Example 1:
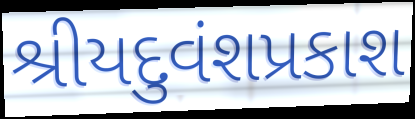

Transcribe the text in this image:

શ્રીયદુવંશપ્રકાશ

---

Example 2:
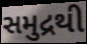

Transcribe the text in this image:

સમુદ્રથી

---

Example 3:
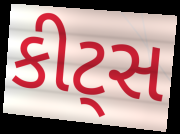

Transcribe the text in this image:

કીટ્સ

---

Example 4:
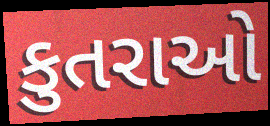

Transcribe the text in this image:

કુતરાઓ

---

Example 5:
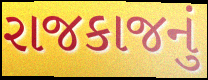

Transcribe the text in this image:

રાજકાજનું